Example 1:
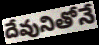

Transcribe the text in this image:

దేవునితోనే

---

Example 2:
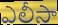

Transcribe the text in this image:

ఎలీసా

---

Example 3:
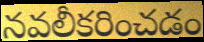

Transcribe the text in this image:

నవలీకరించడం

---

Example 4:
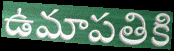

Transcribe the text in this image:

ఉమాపతికి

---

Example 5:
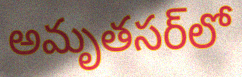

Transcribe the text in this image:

అమృతసర్‌లో